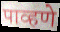
पाव्हणे